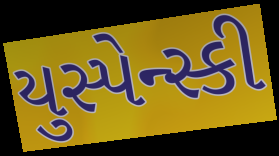
યુસ્પેન્સ્કી